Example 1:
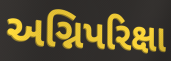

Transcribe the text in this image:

અગ્નિપરિક્ષા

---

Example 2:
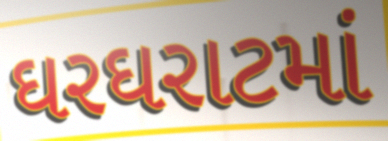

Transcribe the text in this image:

ઘરઘરાટમાં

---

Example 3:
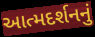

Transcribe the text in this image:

આત્મદર્શનનું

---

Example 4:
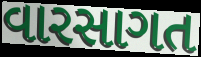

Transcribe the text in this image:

વારસાગત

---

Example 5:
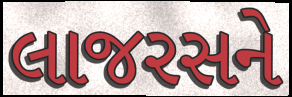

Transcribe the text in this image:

લાજરસને